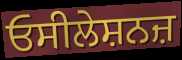
ਓਸੀਲੇਸ਼ਨਜ਼